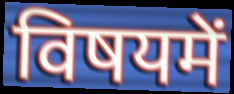
विषयमें